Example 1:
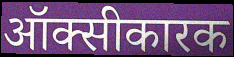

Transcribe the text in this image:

ऑक्सीकारक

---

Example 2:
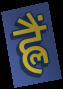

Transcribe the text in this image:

ह्लैं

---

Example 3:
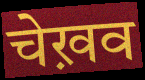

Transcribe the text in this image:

चेख़व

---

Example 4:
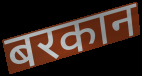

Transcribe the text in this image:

बरकान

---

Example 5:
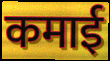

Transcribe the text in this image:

कमाई